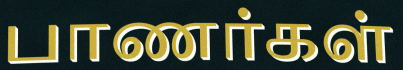
பாணர்கள்